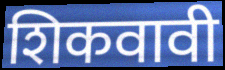
शिकवावी